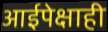
आईपेक्षाही